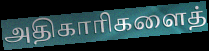
அதிகாரிகளைத்